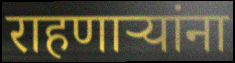
राहणाऱ्यांना